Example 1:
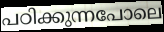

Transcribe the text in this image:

പഠിക്കുന്നപോലെ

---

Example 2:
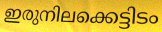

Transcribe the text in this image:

ഇരുനിലക്കെട്ടിടം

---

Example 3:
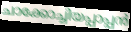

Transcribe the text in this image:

ചാക്കോച്ചിയപ്പാപ്പൻ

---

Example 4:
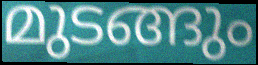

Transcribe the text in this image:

മുടങ്ങും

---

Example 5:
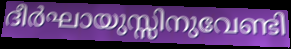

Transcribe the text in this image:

ദീർഘായുസ്സിനുവേണ്ടി